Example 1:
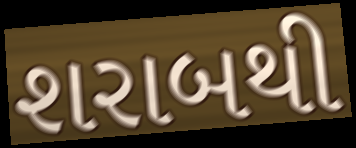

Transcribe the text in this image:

શરાબથી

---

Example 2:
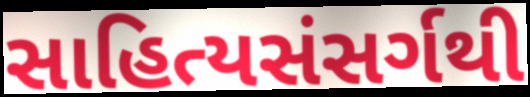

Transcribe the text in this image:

સાહિત્યસંસર્ગથી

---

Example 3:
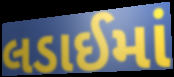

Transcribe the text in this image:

લડાઈમાં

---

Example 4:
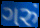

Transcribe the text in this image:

ગરું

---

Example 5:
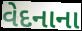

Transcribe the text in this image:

વેદનાના